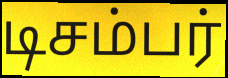
டிசம்பர்